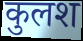
कुलश